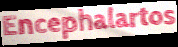
Encephalartos